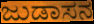
ಜುಡಾಸನ